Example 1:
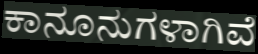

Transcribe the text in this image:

ಕಾನೂನುಗಳಾಗಿವೆ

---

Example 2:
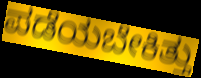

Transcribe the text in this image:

ಪಡೆಯಬೇಕಿತ್ತು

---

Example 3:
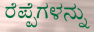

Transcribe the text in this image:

ರೆಪ್ಪೆಗಳನ್ನು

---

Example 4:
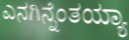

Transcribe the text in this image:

ಎನಗಿನ್ನೆಂತಯ್ಯಾ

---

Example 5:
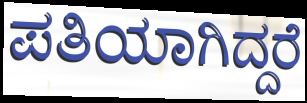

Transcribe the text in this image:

ಪತಿಯಾಗಿದ್ದರೆ